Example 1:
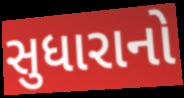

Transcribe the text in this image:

સુધારાનો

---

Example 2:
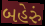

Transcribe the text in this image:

બહેરું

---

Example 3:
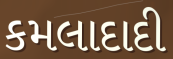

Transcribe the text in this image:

કમલાદાદી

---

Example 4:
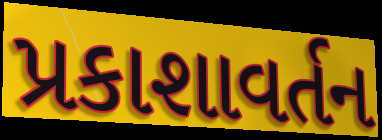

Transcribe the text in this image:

પ્રકાશાવર્તન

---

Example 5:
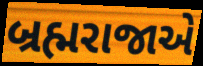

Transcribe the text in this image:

બ્રહ્મરાજાએ